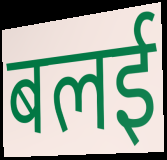
बलई